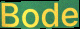
Bode